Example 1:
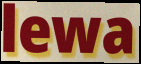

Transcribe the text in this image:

lewa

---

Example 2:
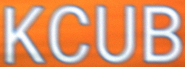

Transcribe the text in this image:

KCUB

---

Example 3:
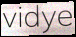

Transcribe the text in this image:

vidye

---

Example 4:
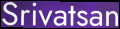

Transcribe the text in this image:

Srivatsan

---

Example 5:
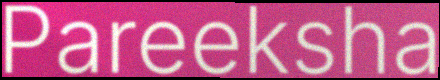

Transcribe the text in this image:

Pareeksha